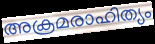
അക്രമരാഹിത്യം